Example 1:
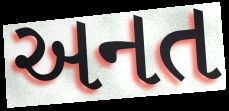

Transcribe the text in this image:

અનત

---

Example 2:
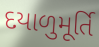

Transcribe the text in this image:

દયાળુમૂર્તિ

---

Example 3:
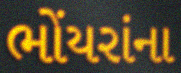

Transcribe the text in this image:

ભોંયરાંના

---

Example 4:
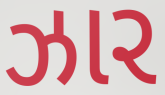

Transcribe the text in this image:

ઝાર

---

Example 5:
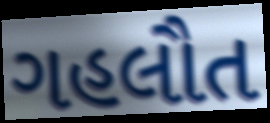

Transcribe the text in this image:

ગહલૌત